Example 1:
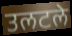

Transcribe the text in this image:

उलटले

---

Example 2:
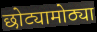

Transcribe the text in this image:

छोट्यामोठ्या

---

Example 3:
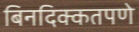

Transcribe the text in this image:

बिनदिक्कतपणे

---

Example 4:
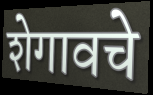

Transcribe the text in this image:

शेगावचे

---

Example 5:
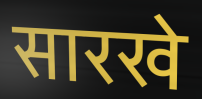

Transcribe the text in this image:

सारखे